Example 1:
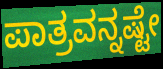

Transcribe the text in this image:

ಪಾತ್ರವನ್ನಷ್ಟೇ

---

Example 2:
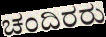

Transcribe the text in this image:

ಚಂದಿರರು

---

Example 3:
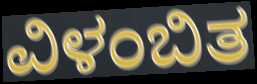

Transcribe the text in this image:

ವಿಳಂಬಿತ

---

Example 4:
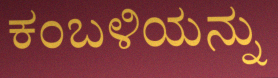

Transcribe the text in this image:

ಕಂಬಳಿಯನ್ನು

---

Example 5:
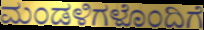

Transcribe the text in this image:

ಮಂಡಳಿಗಳೊಂದಿಗೆ